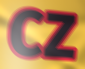
cz